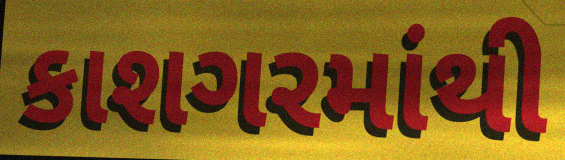
કાશગરમાંથી